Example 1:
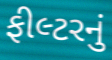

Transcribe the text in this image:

ફીલ્ટરનું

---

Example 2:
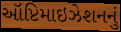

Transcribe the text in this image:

ઑપ્ટિમાઇઝેશનનું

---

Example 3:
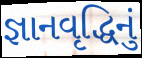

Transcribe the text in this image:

જ્ઞાનવૃદ્ધિનું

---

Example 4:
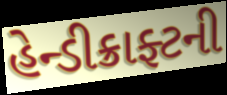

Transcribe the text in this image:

હેન્ડીક્રાફ્ટની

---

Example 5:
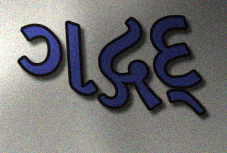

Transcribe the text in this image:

ગદ્ગદ્